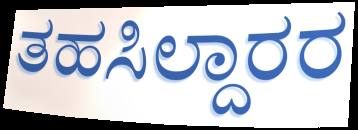
ತಹಸಿಲ್ದಾರರ